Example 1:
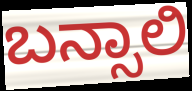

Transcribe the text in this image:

ಬನ್ಸಾಲಿ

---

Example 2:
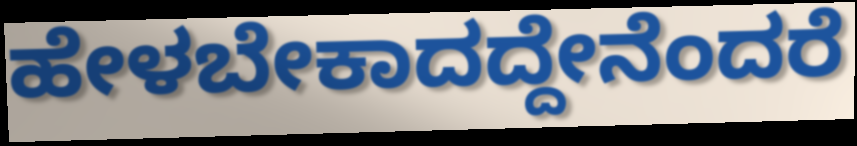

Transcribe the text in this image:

ಹೇಳಬೇಕಾದದ್ದೇನೆಂದರೆ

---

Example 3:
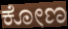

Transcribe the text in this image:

ಕೋಣ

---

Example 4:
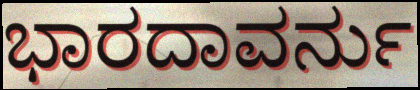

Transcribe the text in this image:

ಭಾರದಾವರ್ನು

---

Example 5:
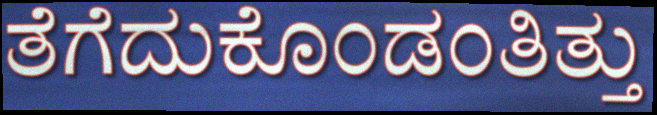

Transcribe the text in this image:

ತೆಗೆದುಕೊಂಡಂತಿತ್ತು